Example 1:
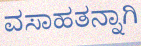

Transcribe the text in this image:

ವಸಾಹತನ್ನಾಗಿ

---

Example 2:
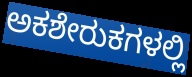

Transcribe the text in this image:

ಅಕಶೇರುಕಗಳಲ್ಲಿ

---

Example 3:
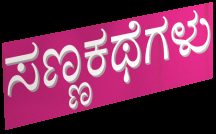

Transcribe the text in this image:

ಸಣ್ಣಕಥೆಗಳು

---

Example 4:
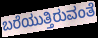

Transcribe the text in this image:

ಬರೆಯುತ್ತಿರುವಂತೆ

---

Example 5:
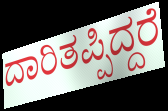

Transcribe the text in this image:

ದಾರಿತಪ್ಪಿದ್ದರೆ